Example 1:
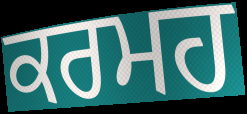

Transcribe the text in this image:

ਕਰਮਹ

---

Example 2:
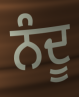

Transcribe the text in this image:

ਨੰਦੂ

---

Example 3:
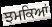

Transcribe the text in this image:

ਝਮਕਿਆਂ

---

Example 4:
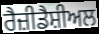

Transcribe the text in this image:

ਰੈਜ਼ੀਡੈਸ਼ੀਅਲ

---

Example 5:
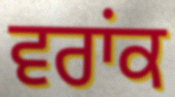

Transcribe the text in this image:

ਵਰਾਂਕ